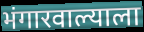
भंगारवाल्याला